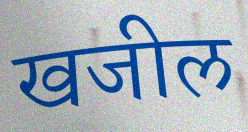
खजील